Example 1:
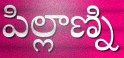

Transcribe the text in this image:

పిల్లాణ్ని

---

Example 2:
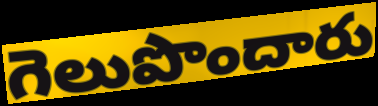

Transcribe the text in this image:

గెలుపొందారు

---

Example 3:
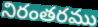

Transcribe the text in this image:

నిరంతరము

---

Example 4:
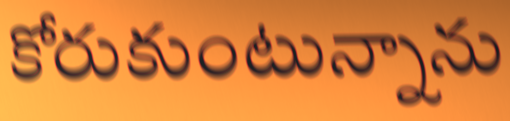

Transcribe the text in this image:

కోరుకుంటున్నాను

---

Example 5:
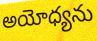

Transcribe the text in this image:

అయోధ్యను